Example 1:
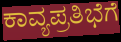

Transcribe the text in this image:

ಕಾವ್ಯಪ್ರತಿಭೆಗೆ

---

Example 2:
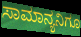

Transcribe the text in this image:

ಸಾಮಾನ್ಯನಿಗೂ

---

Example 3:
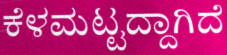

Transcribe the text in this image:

ಕೆಳಮಟ್ಟದ್ದಾಗಿದೆ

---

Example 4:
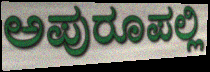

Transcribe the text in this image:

ಅಪುರೂಪಲ್ಲಿ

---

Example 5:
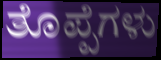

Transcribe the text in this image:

ತೊಪ್ಪೆಗಳು